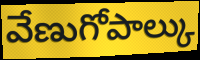
వేణుగోపాల్కు